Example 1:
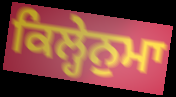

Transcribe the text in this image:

ਕਿਲ੍ਹੇਨੁਮਾ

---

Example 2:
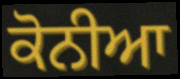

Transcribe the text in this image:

ਕੋਨੀਆ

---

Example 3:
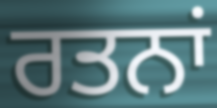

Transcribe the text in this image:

ਰਤਨਾਂ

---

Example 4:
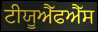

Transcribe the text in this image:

ਟੀਯੂਐੱਫਐੱਸ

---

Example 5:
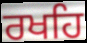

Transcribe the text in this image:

ਰਖਹਿ